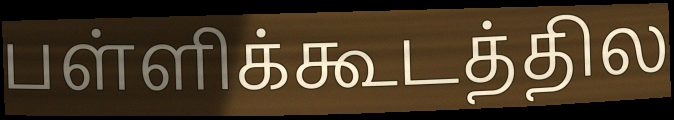
பள்ளிக்கூடத்தில